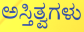
ಅಸ್ತಿತ್ವಗಳು